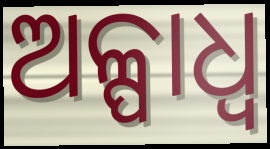
ଅଳ୍ପାଧ୍ଵ